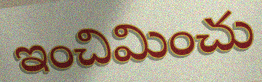
ఇంచిమించు